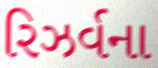
રિઝર્વના